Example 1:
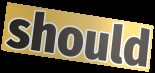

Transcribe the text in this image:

should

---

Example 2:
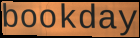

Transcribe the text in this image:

bookday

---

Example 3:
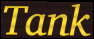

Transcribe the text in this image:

Tank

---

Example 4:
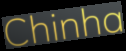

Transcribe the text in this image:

Chinha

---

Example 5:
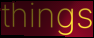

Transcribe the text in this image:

things